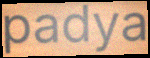
padya